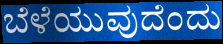
ಬೆಳೆಯುವುದೆಂದು